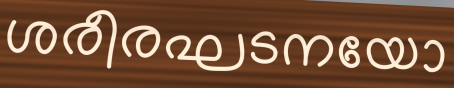
ശരീരഘടനയോ